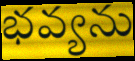
భవ్యను